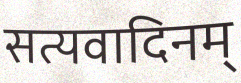
सत्यवादिनम्